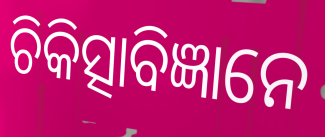
ଚିକିତ୍ସାବିଜ୍ଞାନେ